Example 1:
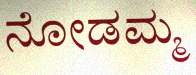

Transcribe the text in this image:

ನೋಡಮ್ಮ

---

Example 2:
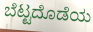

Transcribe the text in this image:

ಬೆಟ್ಟದೊಡೆಯ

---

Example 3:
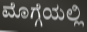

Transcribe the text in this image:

ಮೊಗ್ಗೆಯಲ್ಲಿ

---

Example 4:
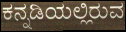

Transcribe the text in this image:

ಕನ್ನಡಿಯಲ್ಲಿರುವ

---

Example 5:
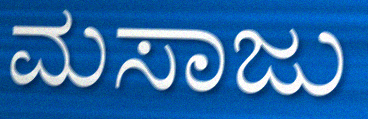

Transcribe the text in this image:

ಮಸಾಜು